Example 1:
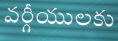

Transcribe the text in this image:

వర్గీయులకు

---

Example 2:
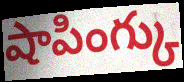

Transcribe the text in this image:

షాపింగ్కు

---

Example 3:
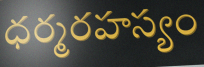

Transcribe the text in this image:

ధర్మరహస్యం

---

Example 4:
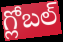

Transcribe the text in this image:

గ్లోబల్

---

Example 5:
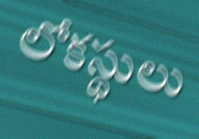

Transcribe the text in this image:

లోకస్థులు